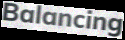
Balancing